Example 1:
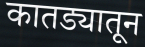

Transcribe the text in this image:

कातड्यातून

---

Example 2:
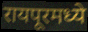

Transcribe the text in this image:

रायपूरमध्ये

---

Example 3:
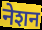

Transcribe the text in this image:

नेशन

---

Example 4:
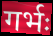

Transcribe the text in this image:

गर्भः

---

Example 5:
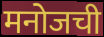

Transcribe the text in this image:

मनोजची